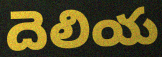
దెలియ